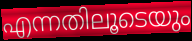
എന്നതിലൂടെയും